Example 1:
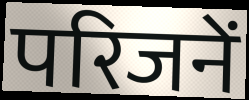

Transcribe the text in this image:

परिजनें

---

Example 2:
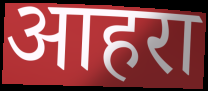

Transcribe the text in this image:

आहरा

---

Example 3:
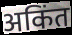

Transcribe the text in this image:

अकिंत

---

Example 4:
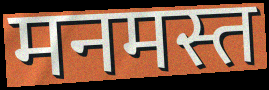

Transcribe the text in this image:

मनमस्त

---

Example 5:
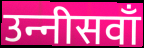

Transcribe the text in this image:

उन्नीसवाँ